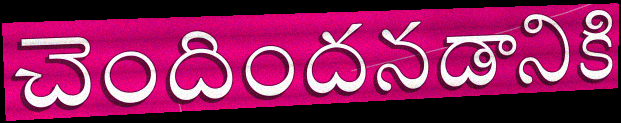
చెందిందనడానికి